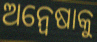
ଅନ୍ୱେଷାକୁ